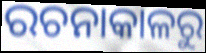
ରଚନାକାଳରୁ